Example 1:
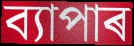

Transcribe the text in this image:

ব্যাপাৰ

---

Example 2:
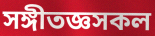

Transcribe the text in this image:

সঙ্গীতজ্ঞসকল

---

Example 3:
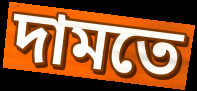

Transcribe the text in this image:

দামতে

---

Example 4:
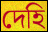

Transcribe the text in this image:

দেহি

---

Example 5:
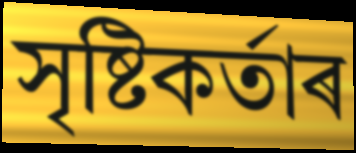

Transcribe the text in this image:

সৃষ্টিকৰ্তাৰ